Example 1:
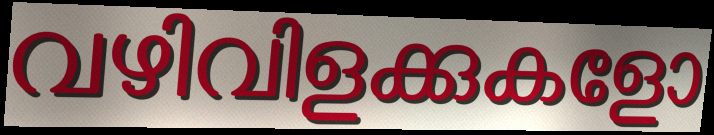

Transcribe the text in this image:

വഴിവിളക്കുകളോ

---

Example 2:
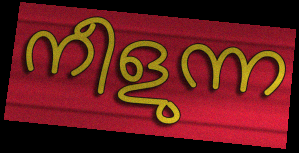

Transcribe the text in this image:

നീളുന്ന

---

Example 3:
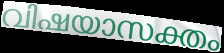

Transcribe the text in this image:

വിഷയാസക്തം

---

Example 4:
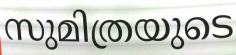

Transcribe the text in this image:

സുമിത്രയുടെ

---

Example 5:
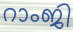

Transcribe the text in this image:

റാംജി